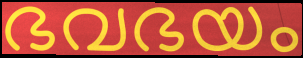
ഭവഭയം